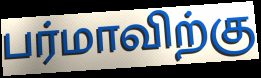
பர்மாவிற்கு